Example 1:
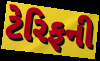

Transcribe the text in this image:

ટેરિફની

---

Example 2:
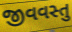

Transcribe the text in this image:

જીવવસ્તુ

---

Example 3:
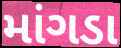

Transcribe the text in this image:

માંગડા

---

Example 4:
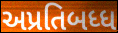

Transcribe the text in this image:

અપ્રતિબધ્ધ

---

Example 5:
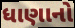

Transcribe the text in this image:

ધાણાનો